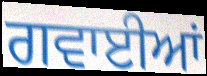
ਗਵਾਈਆਂ